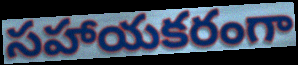
సహాయకరంగా